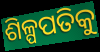
ଶିଳ୍ପପତିକୁ